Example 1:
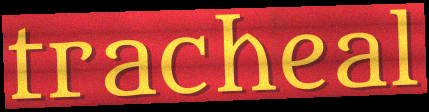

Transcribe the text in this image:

tracheal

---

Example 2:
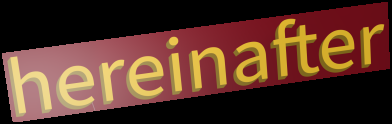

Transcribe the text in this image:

hereinafter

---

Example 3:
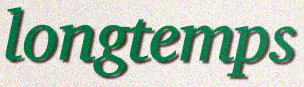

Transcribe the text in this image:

longtemps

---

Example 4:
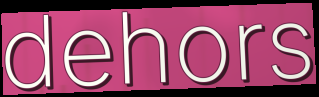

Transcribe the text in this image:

dehors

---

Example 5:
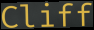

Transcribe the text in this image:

Cliff